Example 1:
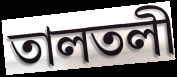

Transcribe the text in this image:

তালতলী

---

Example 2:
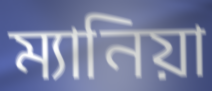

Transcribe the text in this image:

ম্যানিয়া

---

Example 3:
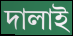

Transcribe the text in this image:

দালাই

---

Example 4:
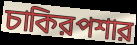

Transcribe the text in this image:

চাকিরপশার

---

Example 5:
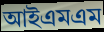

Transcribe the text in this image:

আইএমএম